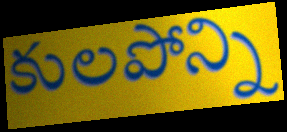
కులపోన్ని